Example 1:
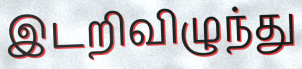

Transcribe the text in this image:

இடறிவிழுந்து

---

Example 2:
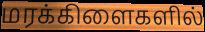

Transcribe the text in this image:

மரக்கிளைகளில்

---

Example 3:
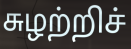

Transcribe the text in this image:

சுழற்றிச்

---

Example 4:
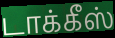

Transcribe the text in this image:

டாக்கீஸ்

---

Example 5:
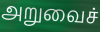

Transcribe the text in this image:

அறுவைச்